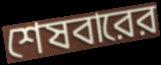
শেষবারের